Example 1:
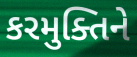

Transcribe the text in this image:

કરમુક્તિને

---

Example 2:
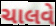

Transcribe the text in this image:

ચાલવે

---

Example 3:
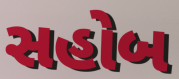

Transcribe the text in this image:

સહોબ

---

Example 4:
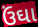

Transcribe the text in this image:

ઉંઘા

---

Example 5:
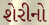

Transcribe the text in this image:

શેરીનો